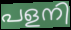
പളനി